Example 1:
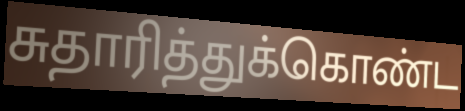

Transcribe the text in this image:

சுதாரித்துக்கொண்ட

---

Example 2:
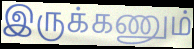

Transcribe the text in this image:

இருக்கணும்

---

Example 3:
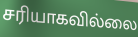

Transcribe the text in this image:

சரியாகவில்லை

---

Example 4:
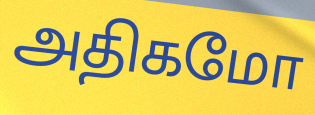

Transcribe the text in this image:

அதிகமோ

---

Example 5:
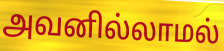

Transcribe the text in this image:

அவனில்லாமல்